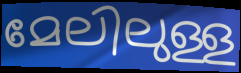
മേലിലുള്ള